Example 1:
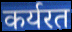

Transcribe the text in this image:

कर्यरत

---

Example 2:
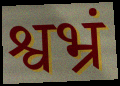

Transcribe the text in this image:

श्वभ्रं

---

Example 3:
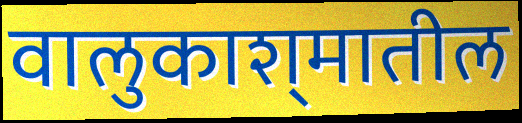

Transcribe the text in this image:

वालुकाश्मातील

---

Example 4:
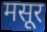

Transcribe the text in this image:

मसूर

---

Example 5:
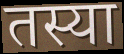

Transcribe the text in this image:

तस्या